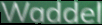
Waddel